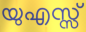
യുഎസ്സ്